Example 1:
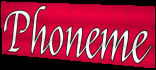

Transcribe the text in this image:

Phoneme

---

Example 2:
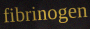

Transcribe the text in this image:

fibrinogen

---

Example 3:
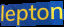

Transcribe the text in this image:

lepton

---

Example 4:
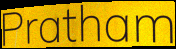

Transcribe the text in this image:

Pratham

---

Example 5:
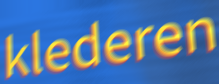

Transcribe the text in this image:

klederen